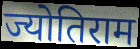
ज्योतिराम